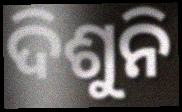
ଦିଶୁନି